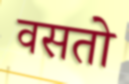
वसतो